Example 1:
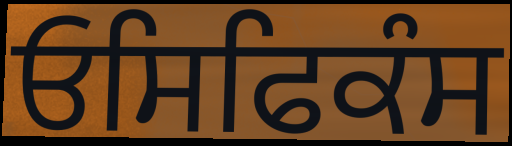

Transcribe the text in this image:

ਓਸਿਫਿਕੰਸ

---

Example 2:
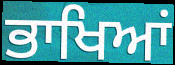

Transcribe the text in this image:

ਭਾਖਿਆਂ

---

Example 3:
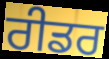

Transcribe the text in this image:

ਰੀਡਰ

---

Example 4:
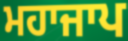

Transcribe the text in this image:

ਮਹਾਜਾਪ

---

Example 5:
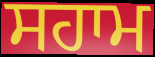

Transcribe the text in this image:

ਸਹਾਮ